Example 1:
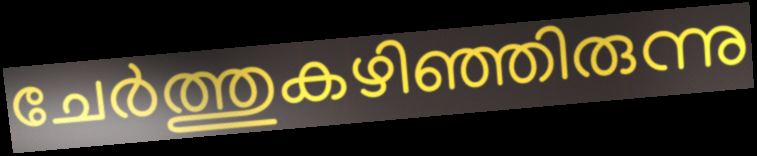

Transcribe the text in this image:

ചേർത്തുകഴിഞ്ഞിരുന്നു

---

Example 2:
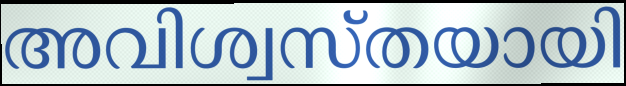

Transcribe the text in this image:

അവിശ്വസ്തയായി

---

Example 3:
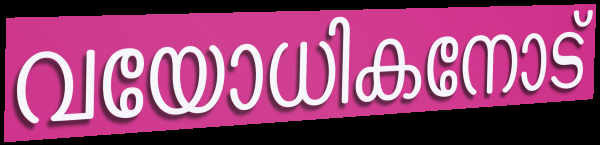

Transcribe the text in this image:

വയോധികനോട്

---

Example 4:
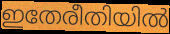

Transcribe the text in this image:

ഇതേരീതിയിൽ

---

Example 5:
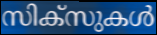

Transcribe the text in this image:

സിക്സുകൾ